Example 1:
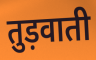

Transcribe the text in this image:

तुड़वाती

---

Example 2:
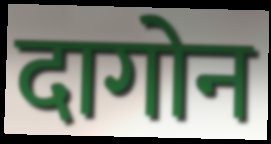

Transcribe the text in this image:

दागोन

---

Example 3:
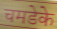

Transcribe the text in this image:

चमडेके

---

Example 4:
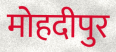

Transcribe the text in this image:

मोहदीपुर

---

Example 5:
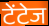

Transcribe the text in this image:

टेंटेज